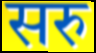
सरु